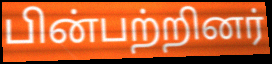
பின்பற்றினர்